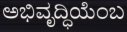
ಅಭಿವೃದ್ಧಿಯೆಂಬ